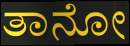
ತಾನೋ